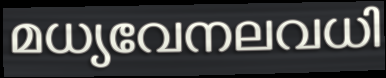
മധ്യവേനലവധി